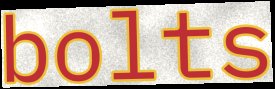
bolts